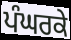
ਪੰਘਰਕੇ